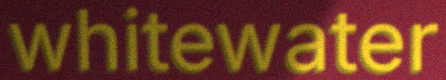
whitewater